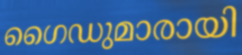
ഗൈഡുമാരായി